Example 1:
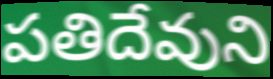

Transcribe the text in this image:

పతిదేవుని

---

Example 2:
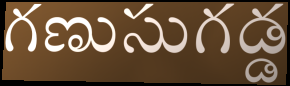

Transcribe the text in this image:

గణుసుగడ్డ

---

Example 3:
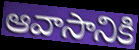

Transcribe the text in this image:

ఆవాసానికి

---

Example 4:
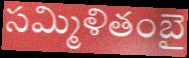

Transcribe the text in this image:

సమ్మిళితంబై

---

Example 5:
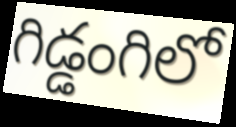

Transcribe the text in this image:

గిడ్డంగిలో